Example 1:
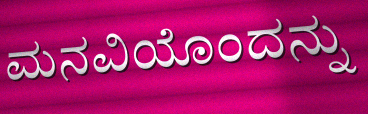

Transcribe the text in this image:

ಮನವಿಯೊಂದನ್ನು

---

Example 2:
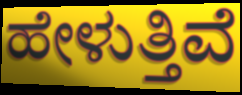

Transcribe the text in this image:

ಹೇಳುತ್ತಿವೆ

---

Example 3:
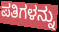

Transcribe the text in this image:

ಪತಿಗಳನ್ನು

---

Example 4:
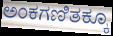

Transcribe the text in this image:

ಅಂಕಗಣಿತಕ್ಕೂ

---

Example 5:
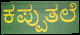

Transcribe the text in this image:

ಕಪ್ಪುತಲೆ